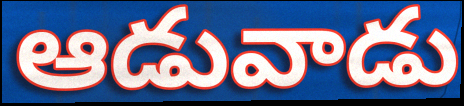
ఆడువాడు